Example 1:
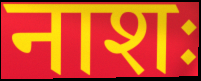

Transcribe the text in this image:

नाशः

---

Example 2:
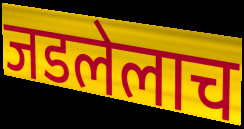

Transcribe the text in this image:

जडलेलाच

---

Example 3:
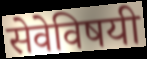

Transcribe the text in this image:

सेवेविषयी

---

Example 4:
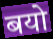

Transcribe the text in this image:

बयो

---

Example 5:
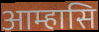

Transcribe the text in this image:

आम्हासि